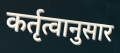
कर्तृत्वानुसार